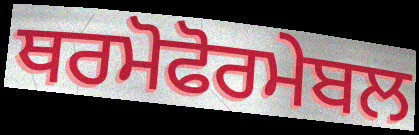
ਥਰਮੋਫੋਰਮੇਬਲ